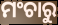
ମଂଚାରୁ